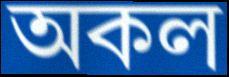
অকল